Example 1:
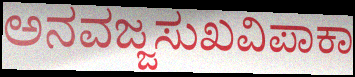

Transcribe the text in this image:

ಅನವಜ್ಜಸುಖವಿಪಾಕಾ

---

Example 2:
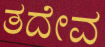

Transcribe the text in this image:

ತದೇವ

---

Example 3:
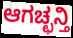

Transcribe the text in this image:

ಆಗಚ್ಛನ್ತಿ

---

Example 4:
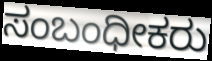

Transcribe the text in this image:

ಸಂಬಂಧೀಕರು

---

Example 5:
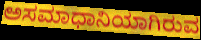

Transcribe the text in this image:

ಅಸಮಾಧಾನಿಯಾಗಿರುವ